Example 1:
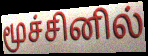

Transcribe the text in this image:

மூச்சினில்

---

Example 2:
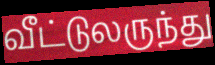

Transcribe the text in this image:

வீட்டுலருந்து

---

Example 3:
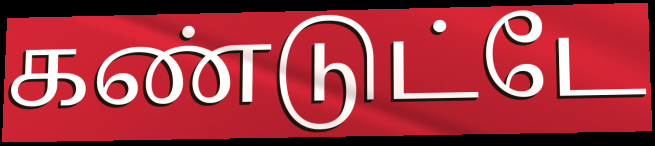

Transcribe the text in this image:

கண்டுட்டே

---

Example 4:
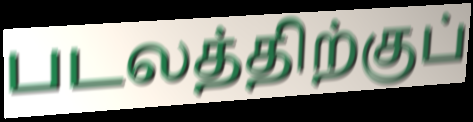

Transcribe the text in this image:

படலத்திற்குப்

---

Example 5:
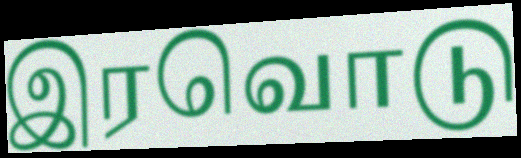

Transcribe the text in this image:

இரவொடு